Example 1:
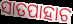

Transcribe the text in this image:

ସାତପାହାଚ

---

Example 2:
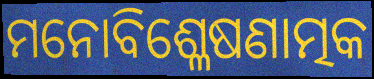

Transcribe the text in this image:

ମନୋବିଶ୍ଳେଷଣାତ୍ମକ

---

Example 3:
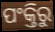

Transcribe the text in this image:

ପଂକ୍ତିରୁ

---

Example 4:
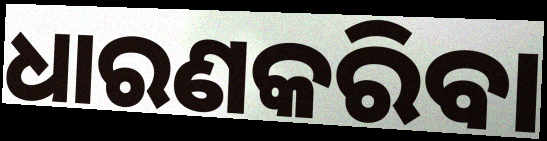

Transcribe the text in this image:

ଧାରଣକରିବା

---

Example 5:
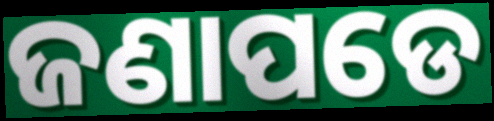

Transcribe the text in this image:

ଜଣାପଡେ